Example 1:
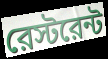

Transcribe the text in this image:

রেস্টরেন্ট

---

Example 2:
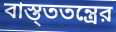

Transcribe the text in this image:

বাস্ত্ততন্ত্রের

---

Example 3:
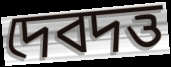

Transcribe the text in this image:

দেবদত্ত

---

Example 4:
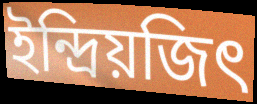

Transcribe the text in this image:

ইন্দ্রিয়জিৎ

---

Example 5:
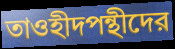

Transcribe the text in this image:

তাওহীদপন্থীদের